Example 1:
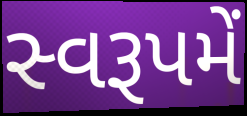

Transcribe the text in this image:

સ્વરૂપમેં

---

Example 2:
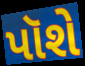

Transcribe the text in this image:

પૉશે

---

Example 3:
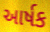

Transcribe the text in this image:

આર્ષક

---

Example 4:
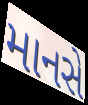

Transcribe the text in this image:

માનસે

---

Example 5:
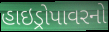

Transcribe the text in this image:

હાઇડ્રોપાવરનો